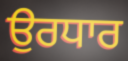
ਉਰਧਾਰ